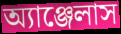
অ্যাঞ্জেলাস